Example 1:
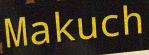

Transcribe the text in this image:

Makuch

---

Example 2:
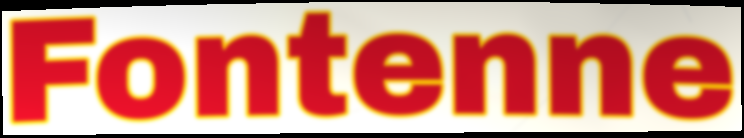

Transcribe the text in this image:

Fontenne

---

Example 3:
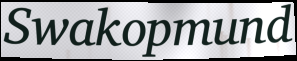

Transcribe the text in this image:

Swakopmund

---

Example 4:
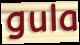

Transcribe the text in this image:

gula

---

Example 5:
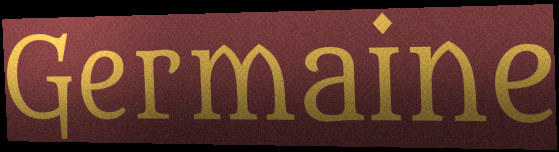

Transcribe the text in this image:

Germaine